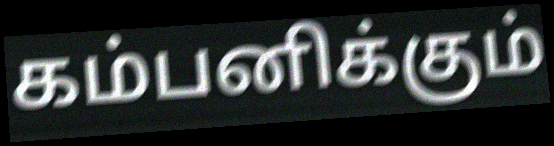
கம்பனிக்கும்